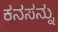
ಕನಸನ್ನು